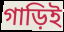
গাড়িই